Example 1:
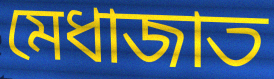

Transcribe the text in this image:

মেধাজাত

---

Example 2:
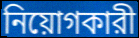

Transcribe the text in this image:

নিয়োগকারী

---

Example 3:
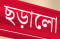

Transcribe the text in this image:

ছড়ালো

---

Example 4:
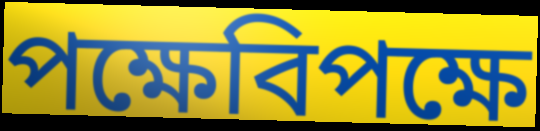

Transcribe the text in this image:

পক্ষেবিপক্ষে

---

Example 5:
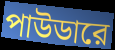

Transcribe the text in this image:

পাউডারে